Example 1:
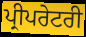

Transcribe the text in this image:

ਪ੍ਰੀਪਰੇਟਰੀ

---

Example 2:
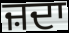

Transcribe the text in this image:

ਜ਼ਦਾ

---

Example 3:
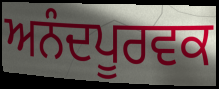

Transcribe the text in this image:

ਅਨੰਦਪੂਰਵਕ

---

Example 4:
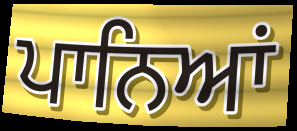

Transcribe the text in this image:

ਪਾਨਿਆਂ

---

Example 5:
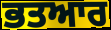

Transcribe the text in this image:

ਭਤਆਰ